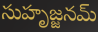
సుహృజ్జనమ్